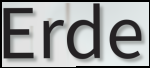
Erde